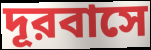
দূরবাসে